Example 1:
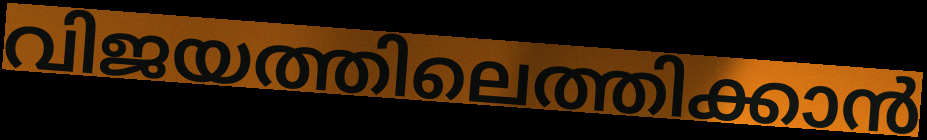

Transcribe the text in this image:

വിജയത്തിലെത്തിക്കാൻ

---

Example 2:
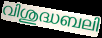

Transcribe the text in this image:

വിശുദ്ധബലി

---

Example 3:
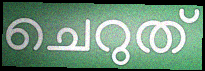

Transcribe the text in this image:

ചെറുത്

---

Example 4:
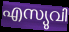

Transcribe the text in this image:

എസ്യുവി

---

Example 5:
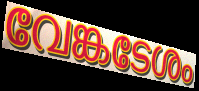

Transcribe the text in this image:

വേങ്കടേശം